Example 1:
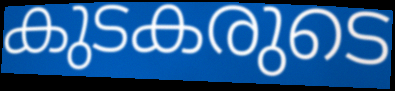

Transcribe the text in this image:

കുടകരുടെ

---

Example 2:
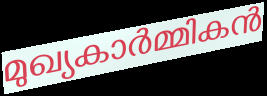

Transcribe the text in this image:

മുഖ്യകാർമ്മികൻ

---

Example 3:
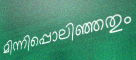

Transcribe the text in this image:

മിന്നിപ്പൊലിഞ്ഞതും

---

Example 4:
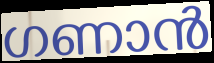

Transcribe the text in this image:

ഗണാൻ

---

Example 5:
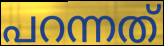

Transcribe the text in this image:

പറന്നത്